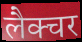
लैक्चर